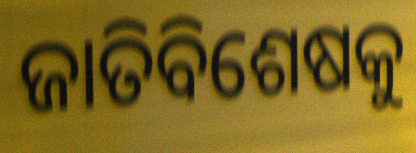
ଜାତିବିଶେଷକୁ